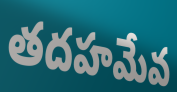
తదహమేవ